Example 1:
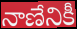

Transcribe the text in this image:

నాణేనికీ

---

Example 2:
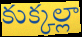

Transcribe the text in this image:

కుక్కల్లా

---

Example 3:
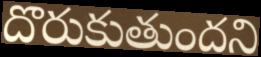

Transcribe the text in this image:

దొరుకుతుందని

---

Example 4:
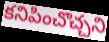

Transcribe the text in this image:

కనిపించొచ్చని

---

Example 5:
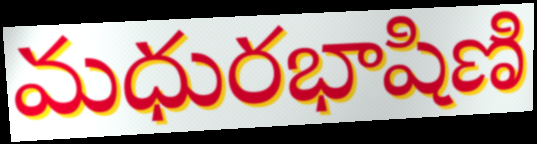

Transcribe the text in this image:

మధురభాషిణి